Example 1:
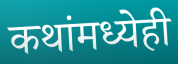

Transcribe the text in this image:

कथांमध्येही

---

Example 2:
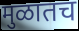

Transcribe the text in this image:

मुळातच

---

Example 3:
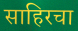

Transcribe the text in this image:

साहिरचा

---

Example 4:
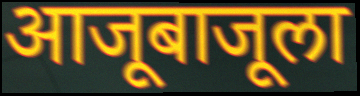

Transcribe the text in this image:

आजूबाजूला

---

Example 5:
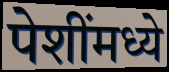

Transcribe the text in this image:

पेशींमध्ये